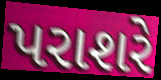
પરાશરે